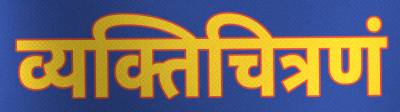
व्यक्तिचित्रणं